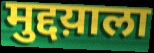
मुद्दय़ाला